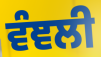
ਵੰਞਲੀ